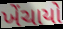
ખેંચાયો